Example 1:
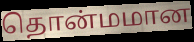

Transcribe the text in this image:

தொன்மமான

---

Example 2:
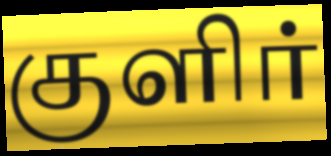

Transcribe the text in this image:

குளிர்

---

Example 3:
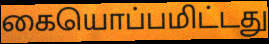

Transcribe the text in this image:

கையொப்பமிட்டது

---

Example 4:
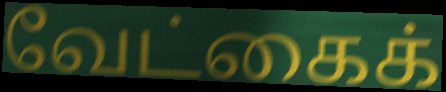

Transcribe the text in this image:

வேட்கைக்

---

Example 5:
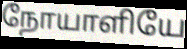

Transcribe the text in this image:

நோயாளியே